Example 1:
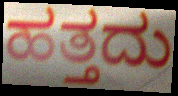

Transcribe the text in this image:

ಹತ್ತದು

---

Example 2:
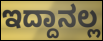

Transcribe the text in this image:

ಇದ್ದಾನಲ್ಲ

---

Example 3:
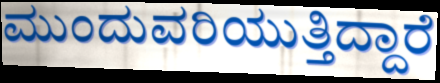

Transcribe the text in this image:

ಮುಂದುವರಿಯುತ್ತಿದ್ದಾರೆ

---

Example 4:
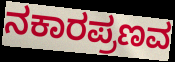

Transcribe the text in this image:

ನಕಾರಪ್ರಣವ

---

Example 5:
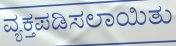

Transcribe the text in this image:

ವ್ಯಕ್ತಪಡಿಸಲಾಯಿತು